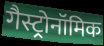
गैस्ट्रोनॉमिक